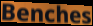
Benches